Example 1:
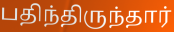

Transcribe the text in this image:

பதிந்திருந்தார்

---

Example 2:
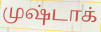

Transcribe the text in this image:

முஷ்டாக்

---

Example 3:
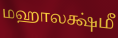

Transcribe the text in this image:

மஹாலக்ஷ்மீ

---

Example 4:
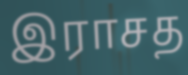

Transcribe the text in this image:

இராசத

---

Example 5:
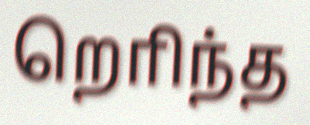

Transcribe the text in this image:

றெரிந்த